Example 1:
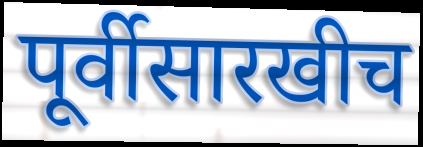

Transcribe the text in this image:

पूर्वीसारखीच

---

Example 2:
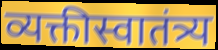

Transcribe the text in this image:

व्यक्तीस्वातंत्र्य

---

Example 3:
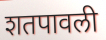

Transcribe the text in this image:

शतपावली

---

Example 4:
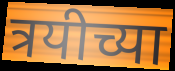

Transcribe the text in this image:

त्रयीच्या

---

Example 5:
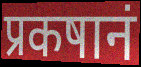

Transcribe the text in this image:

प्रकषानं